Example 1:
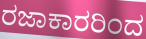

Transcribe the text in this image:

ರಜಾಕಾರರಿಂದ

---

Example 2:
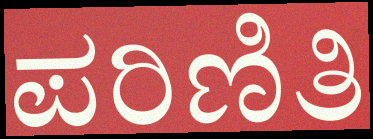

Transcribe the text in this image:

ಪರಿಣಿತಿ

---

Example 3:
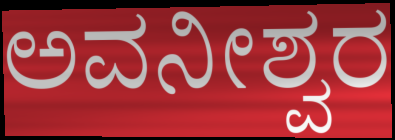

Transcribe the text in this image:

ಅವನೀಶ್ವರ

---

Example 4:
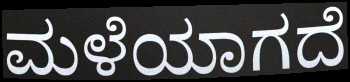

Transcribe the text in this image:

ಮಳೆಯಾಗದೆ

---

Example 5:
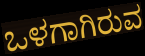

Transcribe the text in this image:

ಒಳಗಾಗಿರುವ